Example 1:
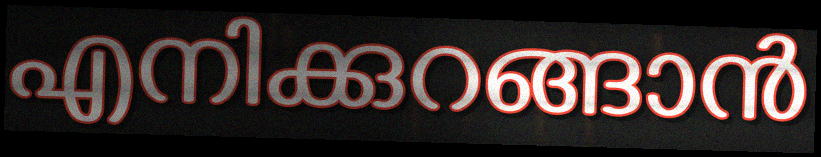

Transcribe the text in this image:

എനിക്കുറങ്ങാൻ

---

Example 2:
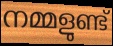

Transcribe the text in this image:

നമ്മളുണ്ട്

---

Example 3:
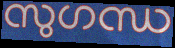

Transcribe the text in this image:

സുഗന്ധ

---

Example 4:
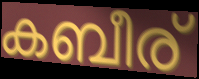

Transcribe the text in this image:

കബീര്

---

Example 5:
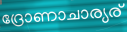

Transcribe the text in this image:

ദ്രോണാചാര്യര്